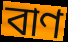
বাণ